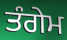
ਤੰਗੇਮ